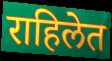
राहिलेत